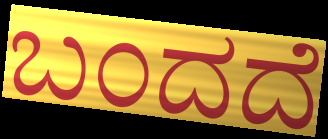
ಬಂದದೆ